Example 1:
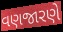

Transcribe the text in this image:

વણજારણે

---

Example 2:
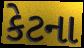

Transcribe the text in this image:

કેટના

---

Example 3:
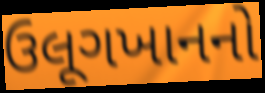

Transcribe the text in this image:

ઉલૂગખાનનો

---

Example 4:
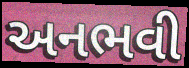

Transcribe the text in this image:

અનભવી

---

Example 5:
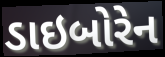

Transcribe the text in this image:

ડાઇબોરેન